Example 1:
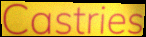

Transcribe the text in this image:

Castries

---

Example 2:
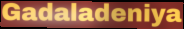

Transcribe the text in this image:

Gadaladeniya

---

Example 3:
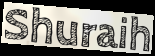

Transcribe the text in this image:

Shuraih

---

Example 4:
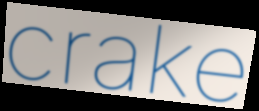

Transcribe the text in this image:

crake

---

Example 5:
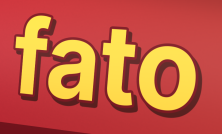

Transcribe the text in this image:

fato